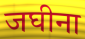
जघीना